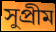
সুপ্ৰীম